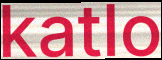
katlo